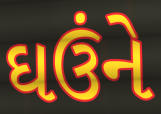
ઘઉંને